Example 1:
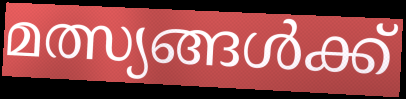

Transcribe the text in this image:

മത്സ്യങ്ങൾക്ക്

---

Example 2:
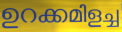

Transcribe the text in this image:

ഉറക്കമിളച്ച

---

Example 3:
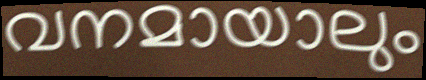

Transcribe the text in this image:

വനമായാലും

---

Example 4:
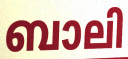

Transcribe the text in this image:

ബാലി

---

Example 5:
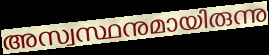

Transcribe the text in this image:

അസ്വസ്ഥനുമായിരുന്നു